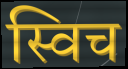
स्विच